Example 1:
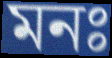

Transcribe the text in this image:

মনঃ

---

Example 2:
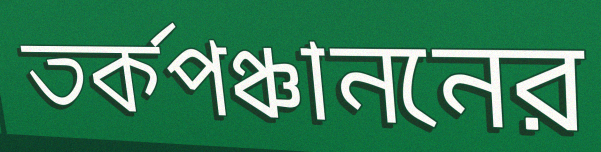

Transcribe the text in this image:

তর্কপঞ্চাননের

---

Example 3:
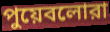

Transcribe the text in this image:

পুয়েবলোরা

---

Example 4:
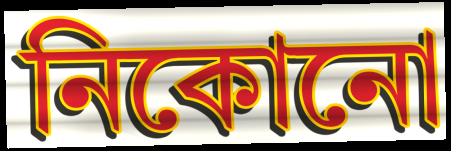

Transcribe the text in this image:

নিকোনো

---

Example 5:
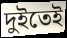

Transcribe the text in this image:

দুইতেই